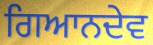
ਗਿਆਨਦੇਵ